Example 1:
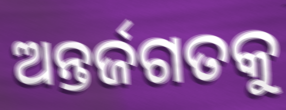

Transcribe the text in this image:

ଅନ୍ତର୍ଜଗତକୁ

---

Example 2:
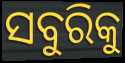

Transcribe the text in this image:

ସବୁରିକୁ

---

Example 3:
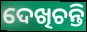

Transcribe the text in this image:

ଦେଖିଚନ୍ତି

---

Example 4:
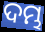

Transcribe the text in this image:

ଦମ୍ଭ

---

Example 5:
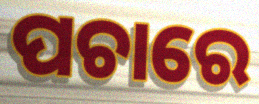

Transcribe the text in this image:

ପଚାରେ